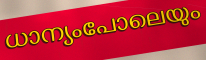
ധാന്യംപോലെയും